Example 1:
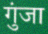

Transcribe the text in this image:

गुंजा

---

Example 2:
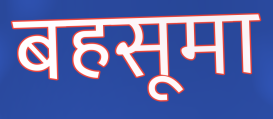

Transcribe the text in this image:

बहसूमा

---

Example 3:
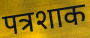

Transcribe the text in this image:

पत्रशाक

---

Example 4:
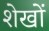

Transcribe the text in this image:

शेखों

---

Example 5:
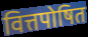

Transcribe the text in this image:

वित्तपोषित